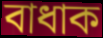
বাধাক